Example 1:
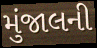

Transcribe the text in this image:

મુંજાલની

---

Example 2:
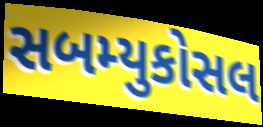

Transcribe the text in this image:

સબમ્યુકોસલ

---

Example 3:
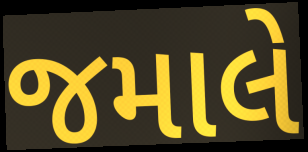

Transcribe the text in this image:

જમાલે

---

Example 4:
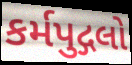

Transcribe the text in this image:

કર્મપુદ્ગલો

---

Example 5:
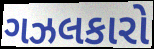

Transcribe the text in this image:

ગઝલકારો